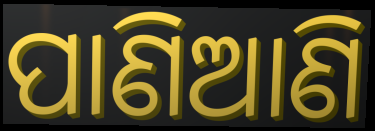
ପାଣିଆଣି